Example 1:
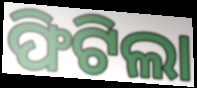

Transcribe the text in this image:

ଫିଟିଲା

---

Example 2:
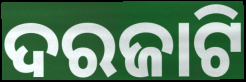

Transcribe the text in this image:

ଦରଜାଟି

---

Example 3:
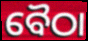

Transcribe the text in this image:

ବୈଠା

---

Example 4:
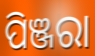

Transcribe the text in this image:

ପିଞ୍ଜରା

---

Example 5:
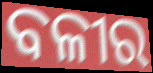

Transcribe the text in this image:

ବଳୀର